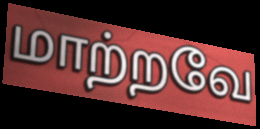
மாற்றவே